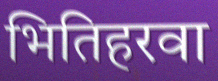
भितिहरवा